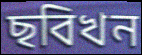
ছবিখন